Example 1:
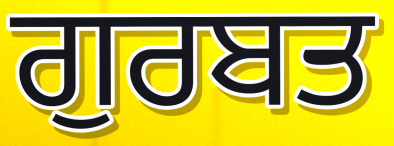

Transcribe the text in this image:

ਗੁਰਬਤ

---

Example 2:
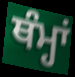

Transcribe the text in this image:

ਥੰਮ੍ਹਾਂ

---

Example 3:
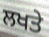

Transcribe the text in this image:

ਲਖਤੇ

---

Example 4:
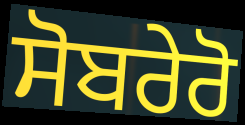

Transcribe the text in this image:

ਸੋਬਰੇਰੋ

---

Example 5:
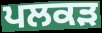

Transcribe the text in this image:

ਪਲਕੜ